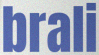
brali